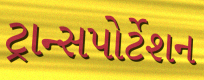
ટ્રાન્સપોર્ટેશન